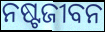
ନଷ୍ଟଜୀବନ